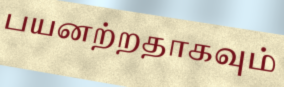
பயனற்றதாகவும்